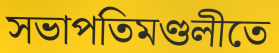
সভাপতিমণ্ডলীতে